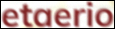
etaerio